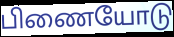
பிணையோடு